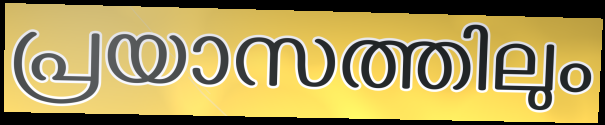
പ്രയാസത്തിലും